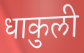
धाकुली